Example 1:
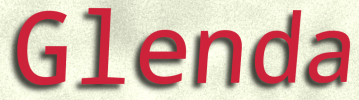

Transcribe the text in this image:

Glenda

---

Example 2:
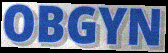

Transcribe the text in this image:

OBGYN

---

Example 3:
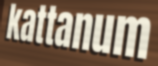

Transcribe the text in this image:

kattanum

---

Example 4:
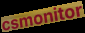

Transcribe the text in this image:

csmonitor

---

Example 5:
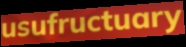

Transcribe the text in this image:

usufructuary